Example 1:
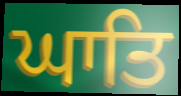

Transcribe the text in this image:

ਘਾਤਿ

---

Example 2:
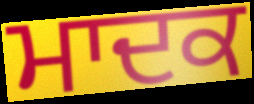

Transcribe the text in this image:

ਮਾਦਕ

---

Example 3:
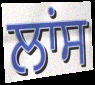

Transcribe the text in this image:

ਲਾਂਸ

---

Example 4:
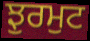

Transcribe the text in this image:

ਝੁਰਮੁਟ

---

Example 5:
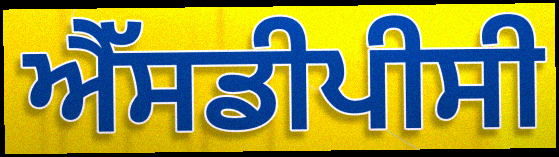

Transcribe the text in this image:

ਐੱਸਡੀਪੀਸੀ